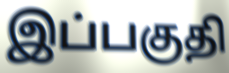
இப்பகுதி